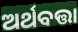
ଅର୍ଥବତ୍ତା